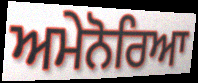
ਅਮੇਨੋਰਿਆ